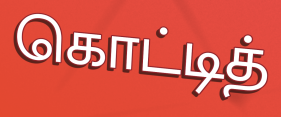
கொட்டித்